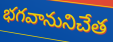
భగవానునిచేత